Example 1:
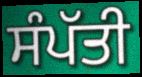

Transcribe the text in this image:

ਸੰਪੱਤੀ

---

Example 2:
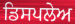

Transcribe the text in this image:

ਡਿਸਪਲੇਅ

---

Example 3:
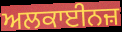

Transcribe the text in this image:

ਅਲਕਾਈਨਜ਼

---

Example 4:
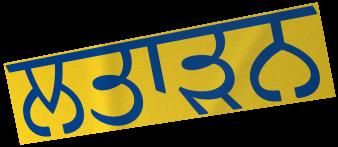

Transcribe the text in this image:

ਲਤਾੜਨ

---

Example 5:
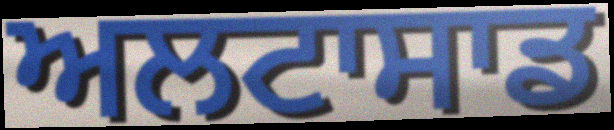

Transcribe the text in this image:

ਅਲਟਾਸਾਡ